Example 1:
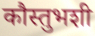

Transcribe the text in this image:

कौस्तुभशी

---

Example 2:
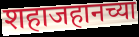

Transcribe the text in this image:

शहाजहानच्या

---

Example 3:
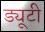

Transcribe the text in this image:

ड्यूटी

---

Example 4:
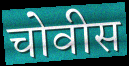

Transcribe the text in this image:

चोवीस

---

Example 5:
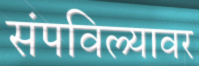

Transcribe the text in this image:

संपविल्यावर